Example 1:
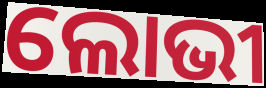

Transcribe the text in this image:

ଲୋଭୀ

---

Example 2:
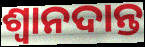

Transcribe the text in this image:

ଶ୍ଵାନଦାନ୍ତ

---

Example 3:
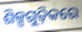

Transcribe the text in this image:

ଶିଳ୍ପଗୁଡ଼ିକରେ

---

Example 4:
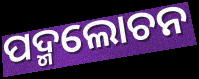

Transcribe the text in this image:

ପଦ୍ମଲୋଚନ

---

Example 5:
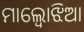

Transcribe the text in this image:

ମାଲ୍ବୋଝିଆ